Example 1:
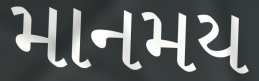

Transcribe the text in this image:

માનમય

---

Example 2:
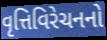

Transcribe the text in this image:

વૃત્તિવિરેચનનો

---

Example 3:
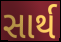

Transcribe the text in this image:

સાર્થ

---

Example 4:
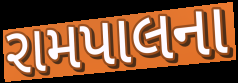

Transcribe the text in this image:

રામપાલના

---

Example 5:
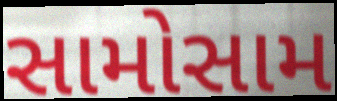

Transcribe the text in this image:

સામોસામ